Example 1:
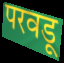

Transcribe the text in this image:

परवडू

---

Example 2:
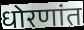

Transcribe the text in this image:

धोरणांत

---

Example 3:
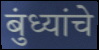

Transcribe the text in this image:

बुंध्यांचे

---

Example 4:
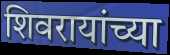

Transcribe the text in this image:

शिवरायांच्या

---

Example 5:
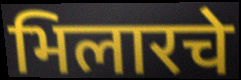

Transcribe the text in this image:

भिलारचे